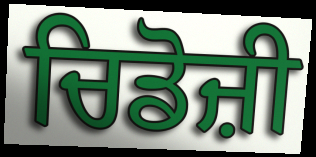
ਚਿਡੋਜ਼ੀ